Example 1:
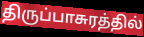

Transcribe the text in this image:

திருப்பாசுரத்தில்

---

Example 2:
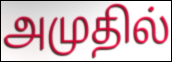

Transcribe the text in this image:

அமுதில்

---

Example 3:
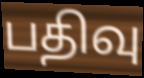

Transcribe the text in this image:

பதிவு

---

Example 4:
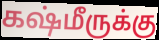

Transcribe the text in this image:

கஷ்மீருக்கு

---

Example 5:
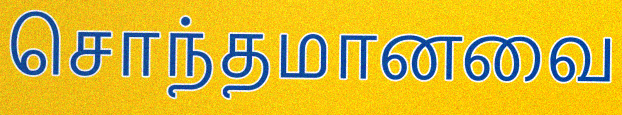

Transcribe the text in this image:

சொந்தமானவை